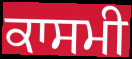
ਕਾਸਮੀ